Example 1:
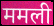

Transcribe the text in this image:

ममली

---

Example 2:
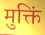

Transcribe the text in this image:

मुक्तिं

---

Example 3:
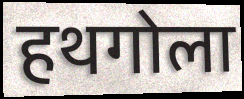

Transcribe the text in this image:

हथगोला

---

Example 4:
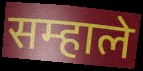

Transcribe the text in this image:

सम्हाले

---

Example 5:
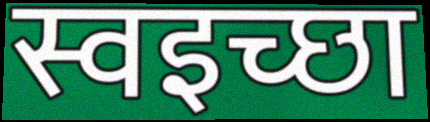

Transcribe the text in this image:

स्वइच्छा